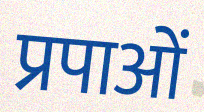
प्रपाओं